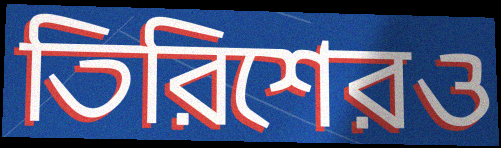
তিরিশেরও